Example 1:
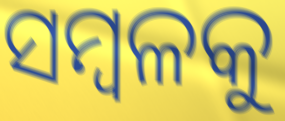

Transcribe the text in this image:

ସମ୍ବଳକୁ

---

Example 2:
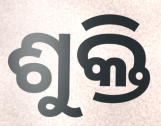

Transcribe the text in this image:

ଶୁକ୍ତି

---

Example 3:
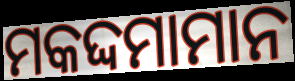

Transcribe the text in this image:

ମକଦ୍ଦମାମାନ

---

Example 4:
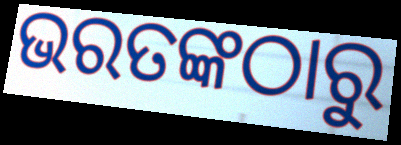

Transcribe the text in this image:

ଭରତଙ୍କଠାରୁ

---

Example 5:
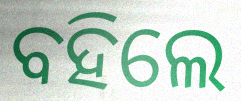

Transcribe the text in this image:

ବହିଲେ